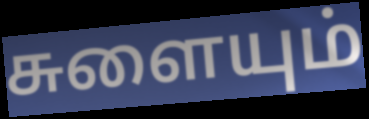
சுளையும்